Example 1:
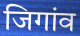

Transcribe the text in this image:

जिगांव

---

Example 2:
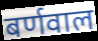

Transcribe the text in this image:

बर्णवाल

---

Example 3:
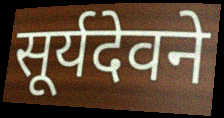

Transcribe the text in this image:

सूर्यदेवने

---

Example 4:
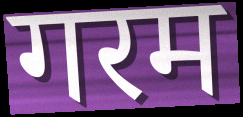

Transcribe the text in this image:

गरम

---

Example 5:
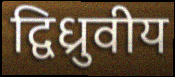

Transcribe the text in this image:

द्विध्रुवीय